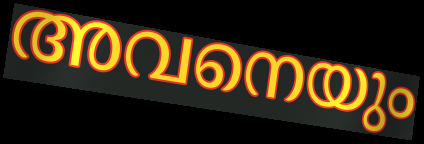
അവനെയും